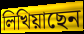
লিখিয়াছেন